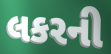
લકરની